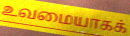
உவமையாகக்